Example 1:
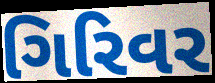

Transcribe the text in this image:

ગિરિવર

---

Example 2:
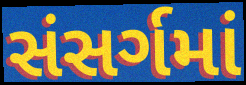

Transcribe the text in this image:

સંસર્ગમાં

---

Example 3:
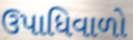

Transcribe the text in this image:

ઉપાધિવાળો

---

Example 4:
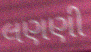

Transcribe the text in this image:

લણણી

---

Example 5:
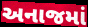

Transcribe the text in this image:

અનાજમાં